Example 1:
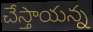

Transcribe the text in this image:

చేస్తాయన్న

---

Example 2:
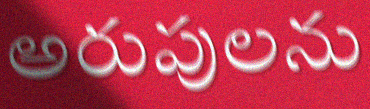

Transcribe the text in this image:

అరుపులను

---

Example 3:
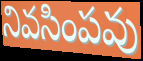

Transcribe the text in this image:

నివసింపవు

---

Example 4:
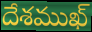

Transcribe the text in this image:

దేశముఖ్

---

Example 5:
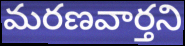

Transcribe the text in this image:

మరణవార్తని